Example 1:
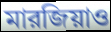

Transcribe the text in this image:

মারজিয়াও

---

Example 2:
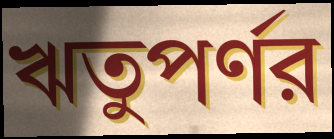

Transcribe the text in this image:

ঋতুপর্ণর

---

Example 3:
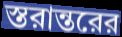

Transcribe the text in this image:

স্তরান্তরের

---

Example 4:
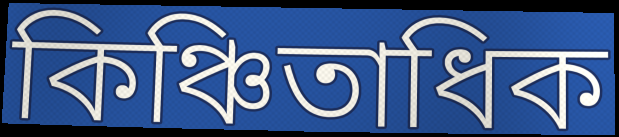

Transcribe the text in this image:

কিঞ্চিতাধিক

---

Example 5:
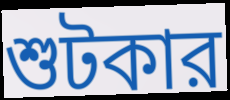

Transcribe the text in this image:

শুটকার